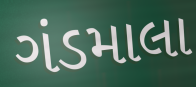
ગંડમાલા